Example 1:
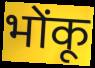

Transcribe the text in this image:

भोंकू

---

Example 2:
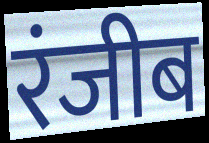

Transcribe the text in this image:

रंजीब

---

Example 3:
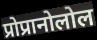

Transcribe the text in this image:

प्रोप्रानोलोल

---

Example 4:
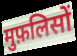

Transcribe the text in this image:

मुफ़लिसों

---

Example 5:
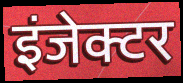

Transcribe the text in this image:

इंजेक्टर